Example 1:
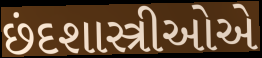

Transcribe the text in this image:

છંદશાસ્ત્રીઓએ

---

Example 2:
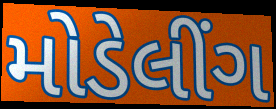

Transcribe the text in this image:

મોડેલીંગ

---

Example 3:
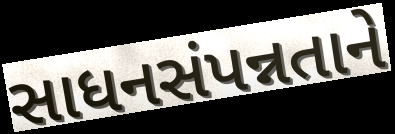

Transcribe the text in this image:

સાધનસંપન્નતાને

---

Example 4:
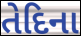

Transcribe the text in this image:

તેદિના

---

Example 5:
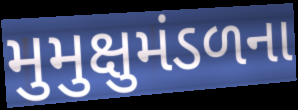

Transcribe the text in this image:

મુમુક્ષુમંડળના